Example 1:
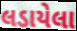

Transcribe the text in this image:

લડાયેલા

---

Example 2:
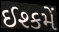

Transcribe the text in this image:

ઈશ્કમેં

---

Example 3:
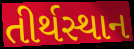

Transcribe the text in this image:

તીર્થસ્થાન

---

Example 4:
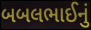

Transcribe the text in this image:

બબલભાઈનું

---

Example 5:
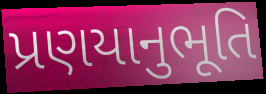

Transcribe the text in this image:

પ્રણયાનુભૂતિ